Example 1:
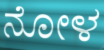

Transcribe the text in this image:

ನೋಳ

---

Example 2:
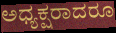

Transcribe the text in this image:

ಅಧ್ಯಕ್ಷರಾದರೂ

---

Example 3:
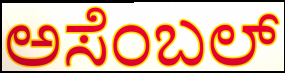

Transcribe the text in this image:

ಅಸೆಂಬಲ್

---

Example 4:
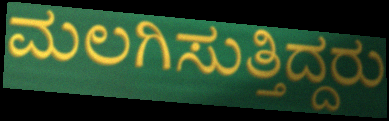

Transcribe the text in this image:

ಮಲಗಿಸುತ್ತಿದ್ದರು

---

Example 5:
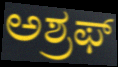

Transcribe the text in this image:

ಅಶ್ರಫ್